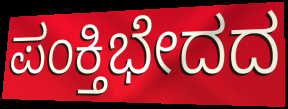
ಪಂಕ್ತಿಭೇದದ